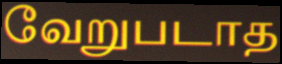
வேறுபடாத